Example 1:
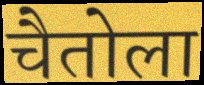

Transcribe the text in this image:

चैतोला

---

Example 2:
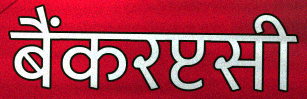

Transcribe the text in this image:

बैंकरप्टसी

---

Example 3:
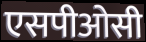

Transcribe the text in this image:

एसपीओसी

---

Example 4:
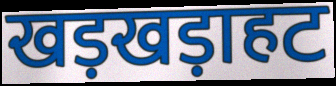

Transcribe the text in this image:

खड़खड़ाहट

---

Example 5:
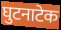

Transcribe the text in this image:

घुटनाटेक